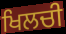
ਖਿਲਚੀ